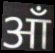
आँ